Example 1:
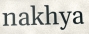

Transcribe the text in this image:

nakhya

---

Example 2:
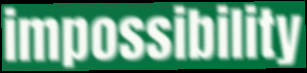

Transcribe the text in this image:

impossibility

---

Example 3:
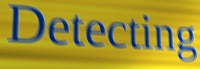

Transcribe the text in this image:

Detecting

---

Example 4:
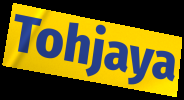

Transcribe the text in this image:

Tohjaya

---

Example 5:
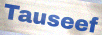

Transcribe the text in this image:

Tauseef